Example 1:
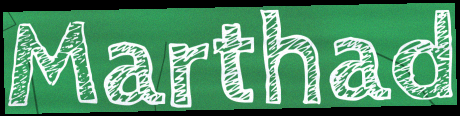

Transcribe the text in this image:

Marthad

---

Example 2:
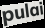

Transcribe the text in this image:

pulai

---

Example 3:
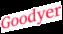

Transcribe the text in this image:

Goodyer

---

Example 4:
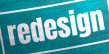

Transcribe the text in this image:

redesign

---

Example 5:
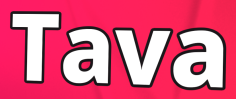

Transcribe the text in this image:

Tava